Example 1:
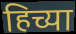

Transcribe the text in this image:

हिच्या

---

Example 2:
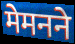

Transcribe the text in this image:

मेमनने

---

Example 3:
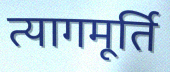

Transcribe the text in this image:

त्यागमूर्ति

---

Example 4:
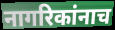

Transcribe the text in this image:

नागरिकांनाच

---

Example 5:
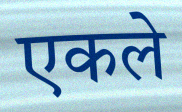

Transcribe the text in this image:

एकले